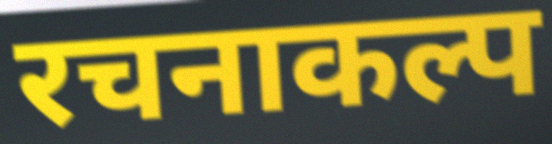
रचनाकल्प